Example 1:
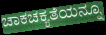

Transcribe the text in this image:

ಚಾಕಚಕ್ಯತೆಯನ್ನೂ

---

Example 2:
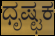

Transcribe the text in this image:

ಧೃಷ್ಟಕ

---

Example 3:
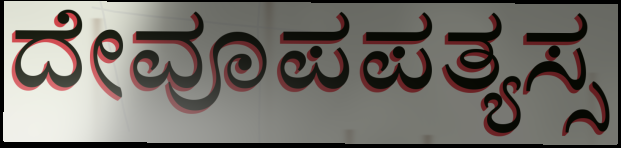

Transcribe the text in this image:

ದೇವೂಪಪತ್ಯಸ್ಸ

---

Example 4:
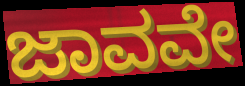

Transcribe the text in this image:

ಜಾವವೇ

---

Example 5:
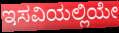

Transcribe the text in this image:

ಇಸವಿಯಲ್ಲಿಯೇ